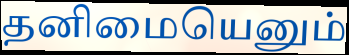
தனிமையெனும்